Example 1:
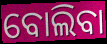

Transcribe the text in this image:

ବୋଲିବା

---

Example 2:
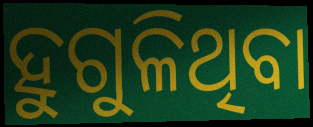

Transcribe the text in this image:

ହୁଗୁଳିଥିବା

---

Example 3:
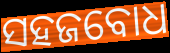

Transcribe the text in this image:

ସହଜବୋଧ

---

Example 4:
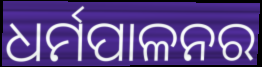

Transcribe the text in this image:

ଧର୍ମପାଳନର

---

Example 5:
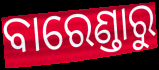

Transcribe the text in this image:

ବାରେଣ୍ଡାରୁ